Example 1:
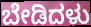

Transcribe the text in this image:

ಬೇಡಿದಳು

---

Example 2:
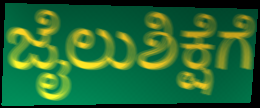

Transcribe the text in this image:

ಜೈಲುಶಿಕ್ಷೆಗೆ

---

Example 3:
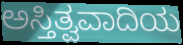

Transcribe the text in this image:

ಅಸ್ತಿತ್ವವಾದಿಯ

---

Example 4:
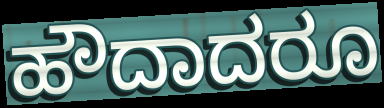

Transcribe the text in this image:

ಹೌದಾದರೂ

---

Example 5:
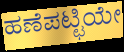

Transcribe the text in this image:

ಹಣೆಪಟ್ಟಿಯೇ